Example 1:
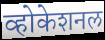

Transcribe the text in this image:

व्होकेशनल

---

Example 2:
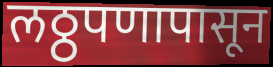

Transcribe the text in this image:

लठ्ठपणापासून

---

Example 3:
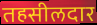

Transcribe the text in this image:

तहसीलदार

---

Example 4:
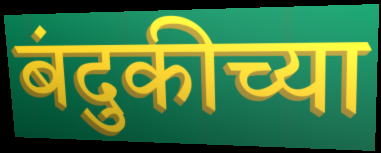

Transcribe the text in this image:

बंदुकीच्या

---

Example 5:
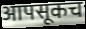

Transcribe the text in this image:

आपसूकच